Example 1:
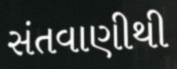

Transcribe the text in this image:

સંતવાણીથી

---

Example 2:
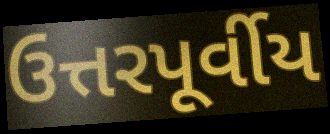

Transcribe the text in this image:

ઉત્તરપૂર્વીય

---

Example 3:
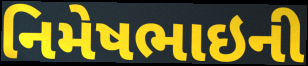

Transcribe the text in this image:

નિમેષભાઇની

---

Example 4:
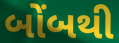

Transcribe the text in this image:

બોંબથી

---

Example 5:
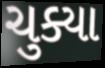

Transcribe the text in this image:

ચુક્યા